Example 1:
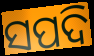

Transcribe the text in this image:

ସପଦି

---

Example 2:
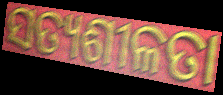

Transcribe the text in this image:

ସତ୍ୟଶୀଳତା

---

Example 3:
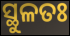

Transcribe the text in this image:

ସ୍ଥୁଳତଃ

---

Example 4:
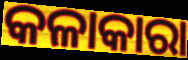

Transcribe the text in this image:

କଳାକାରା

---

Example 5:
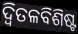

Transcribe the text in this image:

ଦ୍ୱିତଳବିଶିଷ୍ଟ